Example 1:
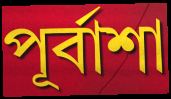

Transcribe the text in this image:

পূর্বাশা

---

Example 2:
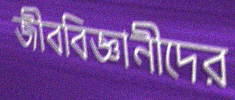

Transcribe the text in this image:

জীববিজ্ঞানীদের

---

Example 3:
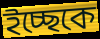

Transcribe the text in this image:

ইচ্ছেকে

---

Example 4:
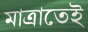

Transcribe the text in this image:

মাত্রাতেই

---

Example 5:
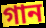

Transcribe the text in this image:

গান